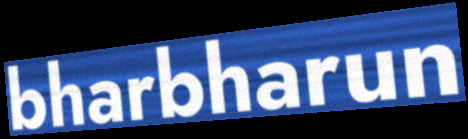
bharbharun